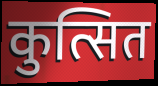
कुत्सित